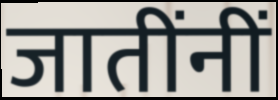
जातींनीं